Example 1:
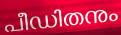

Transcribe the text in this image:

പീഡിതനും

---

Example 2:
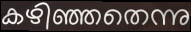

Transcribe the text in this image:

കഴിഞ്ഞതെന്നു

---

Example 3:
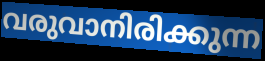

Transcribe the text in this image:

വരുവാനിരിക്കുന്ന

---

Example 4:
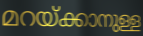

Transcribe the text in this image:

മറയ്ക്കാനുള്ള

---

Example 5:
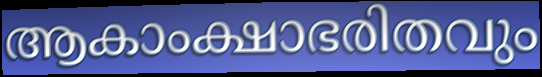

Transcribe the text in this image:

ആകാംക്ഷാഭരിതവും